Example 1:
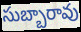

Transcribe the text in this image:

సుబ్బారావు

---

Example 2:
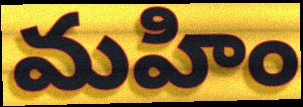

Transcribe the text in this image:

మహిం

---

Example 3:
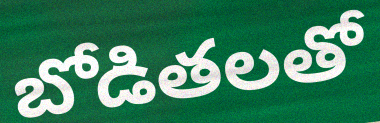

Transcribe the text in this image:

బోడితలతో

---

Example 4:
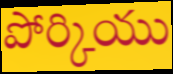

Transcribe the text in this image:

పోర్కియు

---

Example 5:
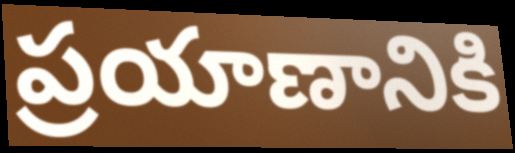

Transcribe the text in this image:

ప్రయాణానికి